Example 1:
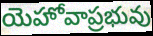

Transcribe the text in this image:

యెహోవాప్రభువు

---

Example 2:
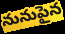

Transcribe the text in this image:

నునుపైన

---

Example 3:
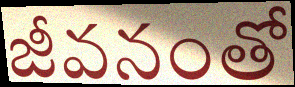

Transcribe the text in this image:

జీవనంతో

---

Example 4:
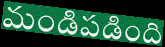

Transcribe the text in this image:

మండిపడింది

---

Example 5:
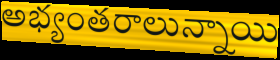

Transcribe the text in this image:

అభ్యంతరాలున్నాయి